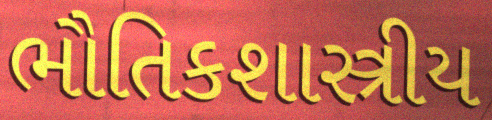
ભૌતિકશાસ્ત્રીય